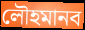
লৌহমানব